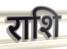
राशि